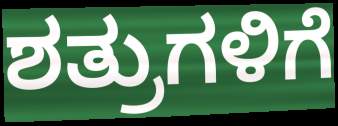
ಶತ್ರುಗಳಿಗೆ